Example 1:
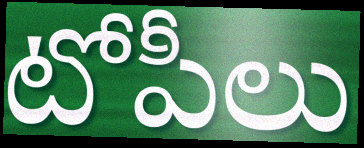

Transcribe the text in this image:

టోపీలు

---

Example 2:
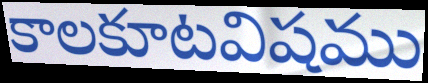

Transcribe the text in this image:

కాలకూటవిషము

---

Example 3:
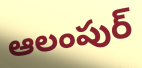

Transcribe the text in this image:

ఆలంపుర్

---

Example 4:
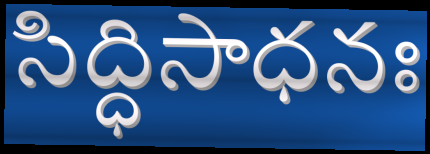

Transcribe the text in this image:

సిద్ధిసాధనః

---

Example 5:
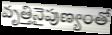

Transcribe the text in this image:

వృత్తినైపుణ్యంతో